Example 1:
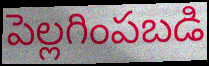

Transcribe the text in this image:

పెల్లగింపబడి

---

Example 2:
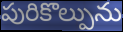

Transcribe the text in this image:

పురికొల్పును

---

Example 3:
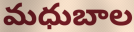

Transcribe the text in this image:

మధుబాల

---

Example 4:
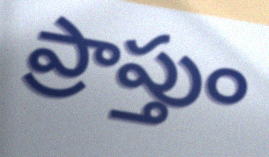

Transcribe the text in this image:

ప్రాప్తుం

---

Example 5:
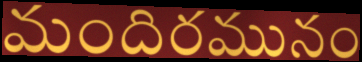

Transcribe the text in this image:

మందిరమునం